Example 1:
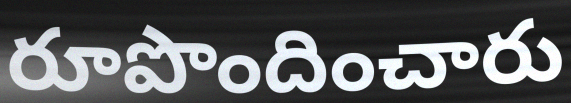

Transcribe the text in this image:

రూపొందించారు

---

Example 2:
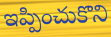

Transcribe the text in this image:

ఇప్పించుకొని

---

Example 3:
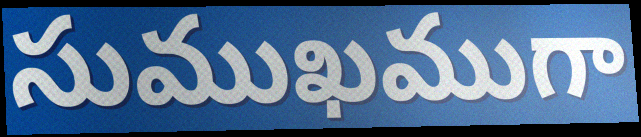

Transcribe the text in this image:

సుముఖముగా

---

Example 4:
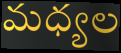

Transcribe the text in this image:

మధ్యల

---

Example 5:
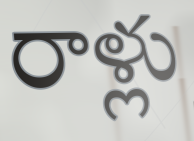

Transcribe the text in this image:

రాళ్లు